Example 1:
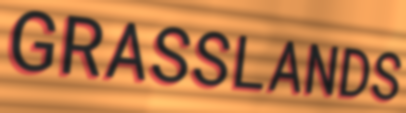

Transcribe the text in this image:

GRASSLANDS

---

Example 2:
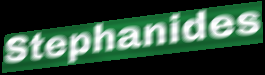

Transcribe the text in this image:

Stephanides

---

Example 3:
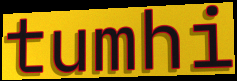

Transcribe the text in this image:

tumhi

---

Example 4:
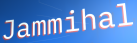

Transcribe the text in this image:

Jammihal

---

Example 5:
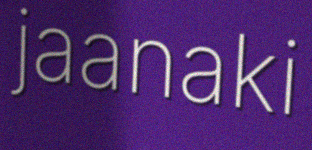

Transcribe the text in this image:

jaanaki